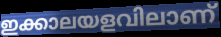
ഇക്കാലയളവിലാണ്